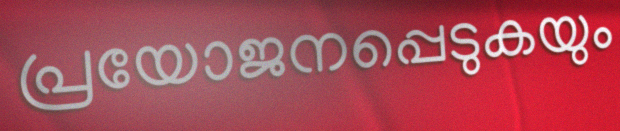
പ്രയോജനപ്പെടുകയും